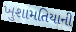
ખુશામતિયાની